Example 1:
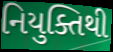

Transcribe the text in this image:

નિયુક્તિથી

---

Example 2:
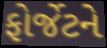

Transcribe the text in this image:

ફોર્જેટને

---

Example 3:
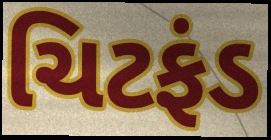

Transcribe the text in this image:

ચિટફંડ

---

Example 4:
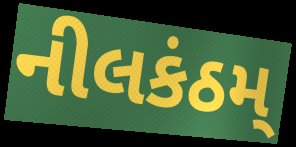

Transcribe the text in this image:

નીલકંઠમ્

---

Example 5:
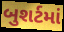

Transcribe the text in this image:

બુશર્ટમાં